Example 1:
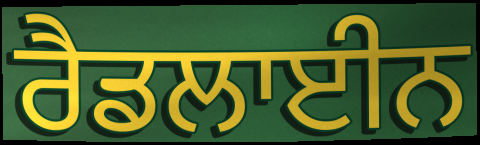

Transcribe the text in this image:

ਰੈਡਲਾਈਨ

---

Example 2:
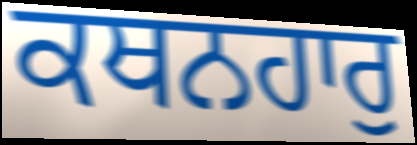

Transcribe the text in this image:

ਕਥਨਹਾਰੁ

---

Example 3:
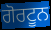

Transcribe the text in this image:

ਗੋਰਟੂਨ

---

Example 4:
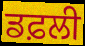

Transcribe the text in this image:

ਡਫ਼ਲੀ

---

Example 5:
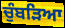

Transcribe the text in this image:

ਚੁੰਬੜਿਆ